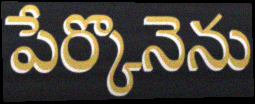
పేర్కొనెను